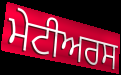
ਮੇਟੀਅਰਸ